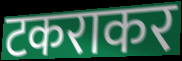
टकराकर